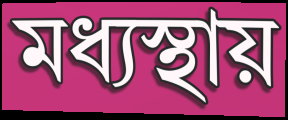
মধ্যস্থায়